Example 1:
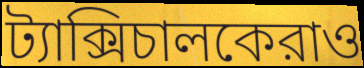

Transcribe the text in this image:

ট্যাক্সিচালকেরাও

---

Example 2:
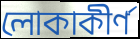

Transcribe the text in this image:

লোকাকীর্ণ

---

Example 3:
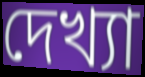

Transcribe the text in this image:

দেখ্যা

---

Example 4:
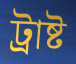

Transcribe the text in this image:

ট্রাষ্ট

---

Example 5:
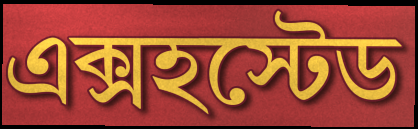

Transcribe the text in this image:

এক্সহস্টেড